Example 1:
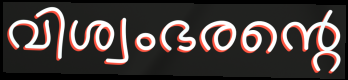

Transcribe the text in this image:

വിശ്വംഭരന്റെ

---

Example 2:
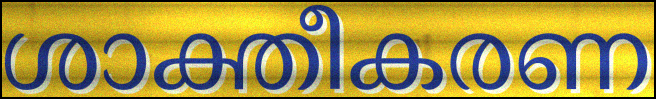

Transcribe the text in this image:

ശാക്തീകരണ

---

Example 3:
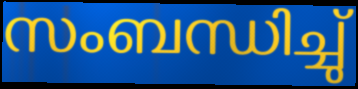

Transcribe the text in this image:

സംബന്ധിച്ചു്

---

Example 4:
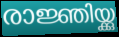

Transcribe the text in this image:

രാജ്ഞിയ്ക്കു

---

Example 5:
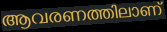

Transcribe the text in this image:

ആവരണത്തിലാണ്